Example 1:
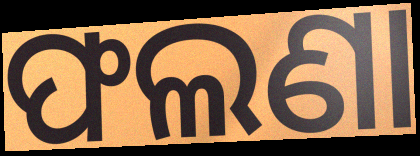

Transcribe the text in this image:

ଫଲଣା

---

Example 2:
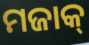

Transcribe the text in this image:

ମଜାକ୍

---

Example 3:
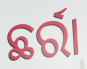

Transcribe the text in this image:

ଛର୍ରା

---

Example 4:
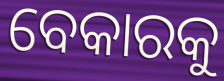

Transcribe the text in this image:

ବେକାରକୁ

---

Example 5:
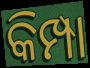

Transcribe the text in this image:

କିମ୍ପା